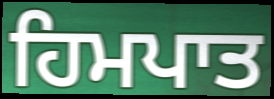
ਹਿਮਪਾਤ